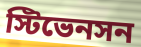
স্টিভেনসন